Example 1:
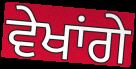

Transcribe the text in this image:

ਵੇਖਾਂਗੇ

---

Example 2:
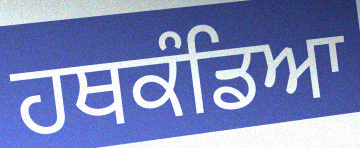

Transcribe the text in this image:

ਹਥਕੰਡਿਆ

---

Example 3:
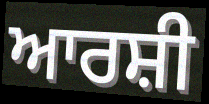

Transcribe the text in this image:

ਆਰਸ਼ੀ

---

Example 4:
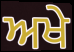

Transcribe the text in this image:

ਅਖੇ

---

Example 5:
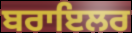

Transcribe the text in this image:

ਬਰਾਇਲਰ